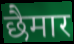
छैमार